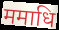
ममाधि